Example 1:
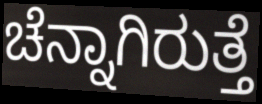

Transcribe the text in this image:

ಚೆನ್ನಾಗಿರುತ್ತೆ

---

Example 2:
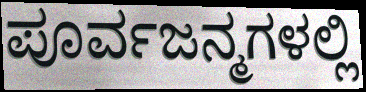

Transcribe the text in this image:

ಪೂರ್ವಜನ್ಮಗಳಲ್ಲಿ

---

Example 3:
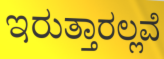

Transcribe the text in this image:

ಇರುತ್ತಾರಲ್ಲವೆ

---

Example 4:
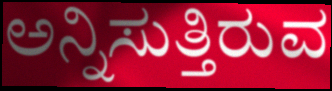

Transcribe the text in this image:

ಅನ್ನಿಸುತ್ತಿರುವ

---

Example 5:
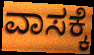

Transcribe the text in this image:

ವಾಸಕ್ಕೆ